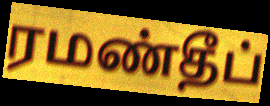
ரமண்தீப்